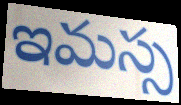
ఇమస్స